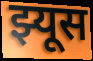
झ्यूस